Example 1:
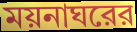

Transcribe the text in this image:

ময়নাঘরের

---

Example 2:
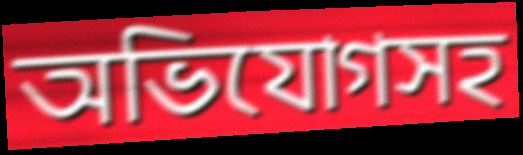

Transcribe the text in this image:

অভিযোগসহ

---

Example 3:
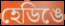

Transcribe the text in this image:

হেডিঙে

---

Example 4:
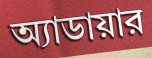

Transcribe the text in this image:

অ্যাডায়ার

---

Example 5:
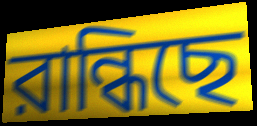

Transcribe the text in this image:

রান্ধিছে